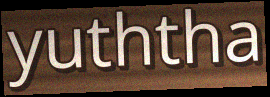
yuththa